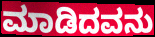
ಮಾಡಿದವನು